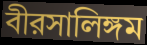
বীরসালিঙ্গম